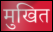
मुखित